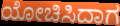
ಯೋಚಿಸಿದಾಗ